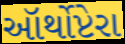
ઑર્થોપ્ટેરા